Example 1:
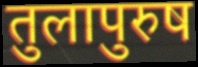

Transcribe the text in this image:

तुलापुरुष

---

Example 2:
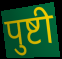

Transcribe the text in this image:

पुष्टी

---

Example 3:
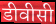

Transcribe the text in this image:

डीवीसी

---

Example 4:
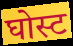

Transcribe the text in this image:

घोस्‍ट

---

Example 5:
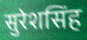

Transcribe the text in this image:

सुरेशसिंह